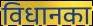
विधानका